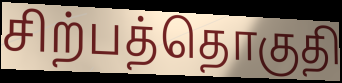
சிற்பத்தொகுதி